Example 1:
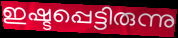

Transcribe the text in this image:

ഇഷ്ടപ്പെട്ടിരുന്നു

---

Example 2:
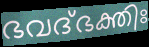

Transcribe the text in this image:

ഭവദ്ഭക്തിഃ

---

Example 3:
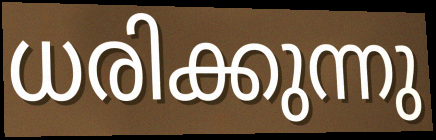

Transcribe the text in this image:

ധരിക്കുന്നു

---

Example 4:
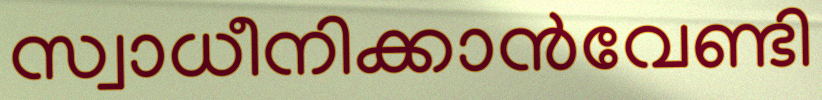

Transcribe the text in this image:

സ്വാധീനിക്കാൻവേണ്ടി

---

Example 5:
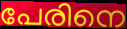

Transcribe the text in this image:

പേരിനെ